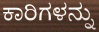
ಕಾರಿಗಳನ್ನು